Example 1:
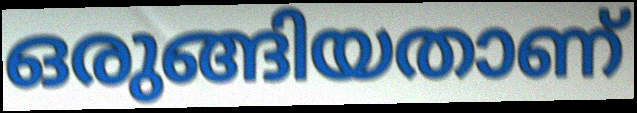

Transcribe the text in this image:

ഒരുങ്ങിയതാണ്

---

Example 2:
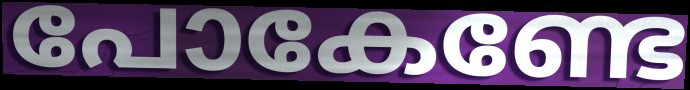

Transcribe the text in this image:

പോകേണ്ടേ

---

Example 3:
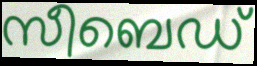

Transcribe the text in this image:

സീബെഡ്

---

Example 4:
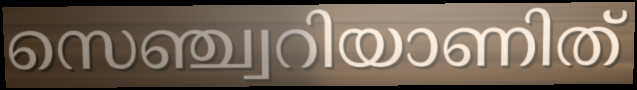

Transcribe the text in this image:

സെഞ്ച്വറിയാണിത്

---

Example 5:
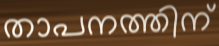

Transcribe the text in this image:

താപനത്തിന്